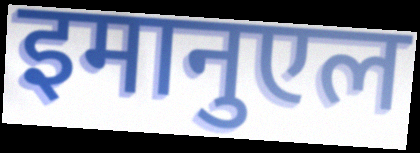
इमानुएल